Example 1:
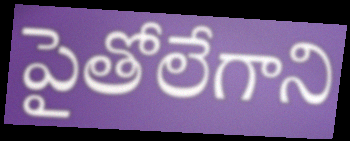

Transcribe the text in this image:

పైతోలేగాని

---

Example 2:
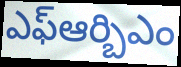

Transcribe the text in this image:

ఎఫ్ఆర్బిఎం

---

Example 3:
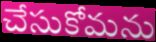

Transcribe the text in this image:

చేసుకోమను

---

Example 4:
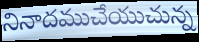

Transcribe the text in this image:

నినాదముచేయుచున్న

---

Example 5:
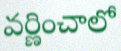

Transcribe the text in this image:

వర్ణించాలో